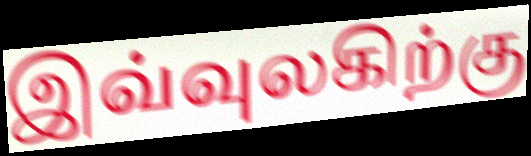
இவ்வுலகிற்கு